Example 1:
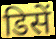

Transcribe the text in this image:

डिसें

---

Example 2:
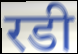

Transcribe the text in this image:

रडी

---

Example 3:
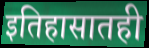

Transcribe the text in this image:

इतिहासातही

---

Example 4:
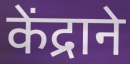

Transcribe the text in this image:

केंद्राने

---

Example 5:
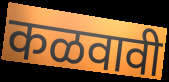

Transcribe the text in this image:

कळवावी